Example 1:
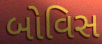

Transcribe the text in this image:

બોવિસ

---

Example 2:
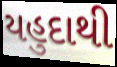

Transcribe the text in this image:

યહુદાથી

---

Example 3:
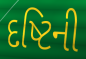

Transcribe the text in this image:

દષ્ટિની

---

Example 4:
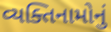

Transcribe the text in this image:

વ્યક્તિનામોનું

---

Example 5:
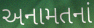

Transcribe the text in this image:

અનામતનાં